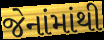
જેનાંમાંથી